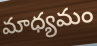
మాధ్యమం